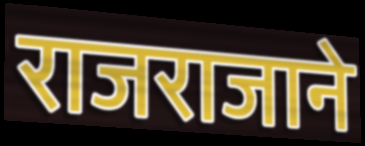
राजराजाने